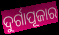
ଦୁର୍ଗାପୂଜାର